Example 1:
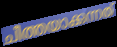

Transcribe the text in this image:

ചീത്തയാക്കുന്നത്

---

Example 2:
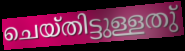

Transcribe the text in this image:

ചെയ്തിട്ടുള്ളതു്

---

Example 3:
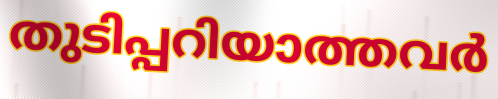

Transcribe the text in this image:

തുടിപ്പറിയാത്തവർ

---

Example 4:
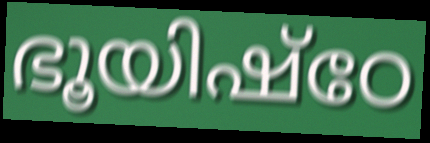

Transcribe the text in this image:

ഭൂയിഷ്ഠേ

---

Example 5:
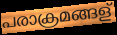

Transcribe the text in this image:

പരാക്രമങ്ങള്